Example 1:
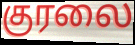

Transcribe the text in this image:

குரலை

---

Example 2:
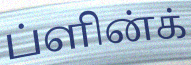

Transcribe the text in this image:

ப்ளின்க்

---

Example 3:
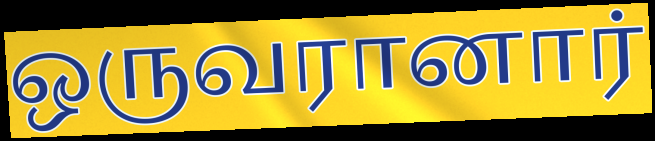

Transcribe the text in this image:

ஒருவரானார்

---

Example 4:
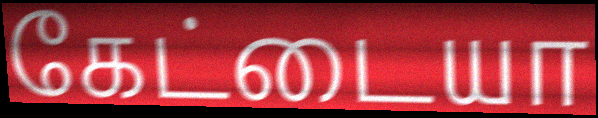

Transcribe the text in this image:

கேட்டையா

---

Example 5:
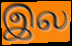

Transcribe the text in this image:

இல